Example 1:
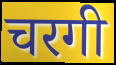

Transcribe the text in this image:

चरगी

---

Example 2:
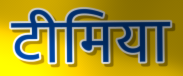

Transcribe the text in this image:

टीमिया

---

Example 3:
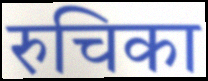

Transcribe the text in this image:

रुचिका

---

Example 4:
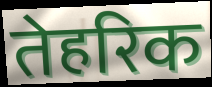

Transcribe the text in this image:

तेहरिक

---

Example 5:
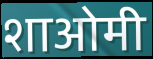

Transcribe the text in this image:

शाओमी